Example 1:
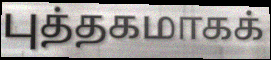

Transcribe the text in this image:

புத்தகமாகக்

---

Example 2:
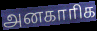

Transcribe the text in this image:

அனகாரிக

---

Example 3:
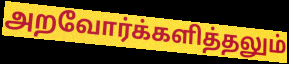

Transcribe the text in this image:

அறவோர்க்களித்தலும்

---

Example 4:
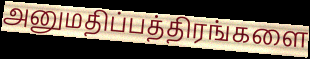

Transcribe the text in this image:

அனுமதிப்பத்திரங்களை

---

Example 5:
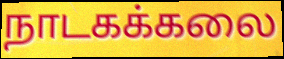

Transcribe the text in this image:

நாடகக்கலை